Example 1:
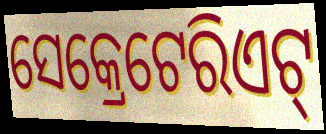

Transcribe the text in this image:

ସେକ୍ରେଟେରିଏଟ୍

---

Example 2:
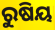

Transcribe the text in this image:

ରୁଷିୟ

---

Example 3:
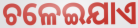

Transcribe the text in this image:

ଚଳେଇଯାଏ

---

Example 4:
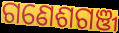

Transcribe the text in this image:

ଗଣେଶଗଞ୍ଜ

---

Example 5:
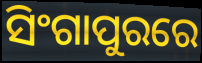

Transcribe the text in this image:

ସିଂଗାପୁରରେ